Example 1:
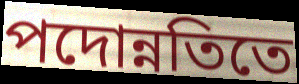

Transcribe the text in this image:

পদোন্নতিতে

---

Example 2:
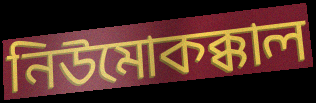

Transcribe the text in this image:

নিউমোকক্কাল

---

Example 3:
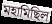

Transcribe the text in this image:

মহামিছিল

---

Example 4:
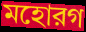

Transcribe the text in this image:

মহোরগ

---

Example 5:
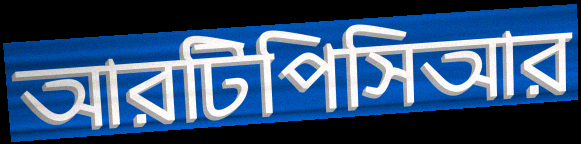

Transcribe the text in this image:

আরটিপিসিআর